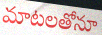
మాటలతోనూ